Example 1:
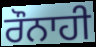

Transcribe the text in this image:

ਰੌਨਾਹੀ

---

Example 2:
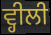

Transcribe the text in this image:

ਵ੍ਹੀਲੀ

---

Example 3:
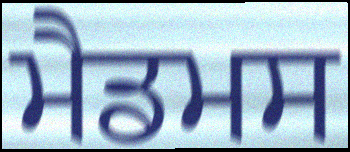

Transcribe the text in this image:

ਮੈਡਮਸ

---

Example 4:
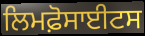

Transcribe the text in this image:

ਲਿਮਫ਼ੋਸਾਈਟਸ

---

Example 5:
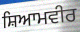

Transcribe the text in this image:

ਸ਼ਿਆਮਵੀਰ